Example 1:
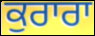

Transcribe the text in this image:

ਕੁਰਾਰਾ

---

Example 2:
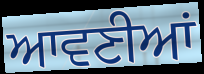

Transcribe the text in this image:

ਆਵਣੀਆਂ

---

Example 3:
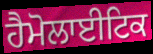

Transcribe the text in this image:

ਹੈਮੋਲਾਈਟਿਕ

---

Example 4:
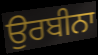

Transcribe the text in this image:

ਉਰਬੀਨਾ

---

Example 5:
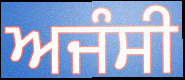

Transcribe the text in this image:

ਅਜੰਸੀ